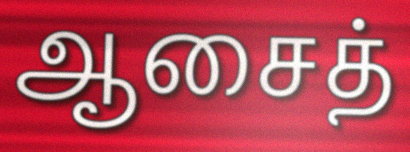
ஆசைத்